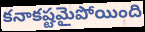
కనాకష్టమైపోయింది